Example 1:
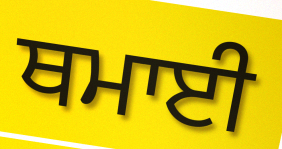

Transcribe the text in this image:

ਥਮਾਈ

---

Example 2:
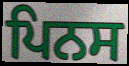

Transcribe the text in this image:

ਪਿਨਸ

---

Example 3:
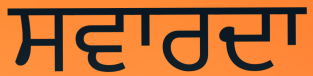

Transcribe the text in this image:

ਸਵਾਰਦਾ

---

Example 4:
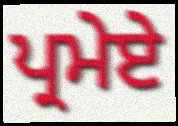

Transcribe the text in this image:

ਪ੍ਰਮੇਏ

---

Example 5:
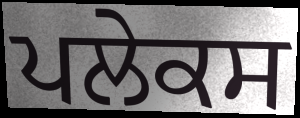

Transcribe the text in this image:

ਪਲੇਕਸ